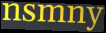
nsmny